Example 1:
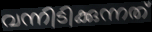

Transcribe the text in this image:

വന്നിടിക്കുന്നത്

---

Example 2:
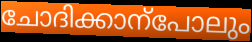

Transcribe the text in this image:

ചോദിക്കാന്പോലും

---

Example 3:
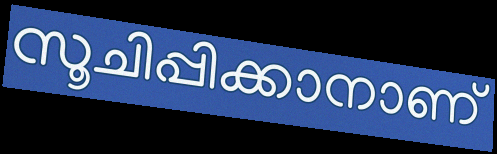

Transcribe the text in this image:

സൂചിപ്പിക്കാനാണ്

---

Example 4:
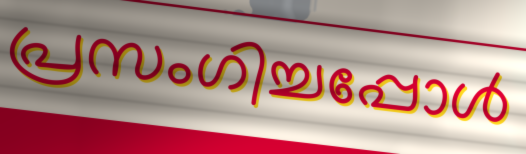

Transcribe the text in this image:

പ്രസംഗിച്ചപ്പോൾ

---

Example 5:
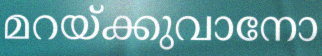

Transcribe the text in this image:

മറയ്ക്കുവാനോ